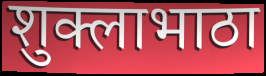
शुक्लाभाठा